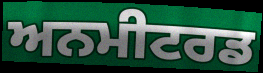
ਅਨਮੀਟਰਡ